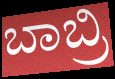
ಬಾಬ್ರಿ